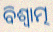
ବିଶ୍ୱାତ୍ମ